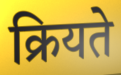
क्रियते